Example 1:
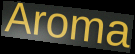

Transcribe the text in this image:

Aroma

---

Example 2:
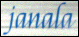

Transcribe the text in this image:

janala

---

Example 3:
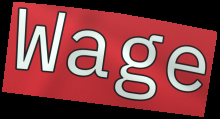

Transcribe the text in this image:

Wage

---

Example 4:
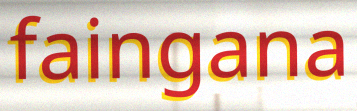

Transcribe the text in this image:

faingana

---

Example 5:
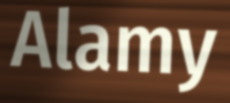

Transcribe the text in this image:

Alamy